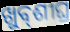
ଖୁବ୍‌ଶୀଘ୍ର